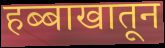
हब्बाखातून